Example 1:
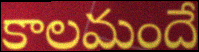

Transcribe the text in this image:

కాలమందే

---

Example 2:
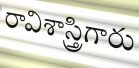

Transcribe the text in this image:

రావిశాస్త్రిగారు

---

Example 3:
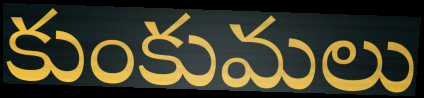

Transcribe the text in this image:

కుంకుమలు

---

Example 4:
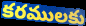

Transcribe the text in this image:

కరములకు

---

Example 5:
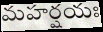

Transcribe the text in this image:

మహర్షయః